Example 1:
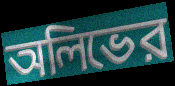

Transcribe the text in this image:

অলিভের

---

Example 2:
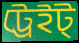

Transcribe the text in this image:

ট্রেইট্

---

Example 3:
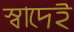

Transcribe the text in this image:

স্বাদেই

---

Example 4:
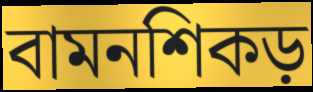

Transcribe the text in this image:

বামনশিকড়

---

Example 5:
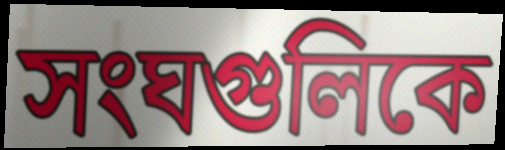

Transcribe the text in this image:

সংঘগুলিকে